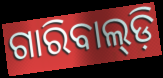
ଗାରିବାଲ୍‌ଡ଼ି